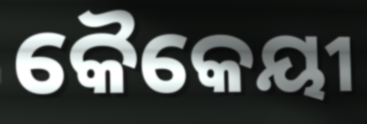
କୈକେୟୀ